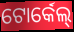
ଟୋର୍କେଲ୍